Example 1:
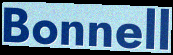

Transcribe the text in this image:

Bonnell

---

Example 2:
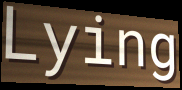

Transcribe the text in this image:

Lying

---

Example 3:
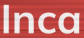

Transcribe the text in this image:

Inca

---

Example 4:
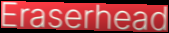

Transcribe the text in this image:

Eraserhead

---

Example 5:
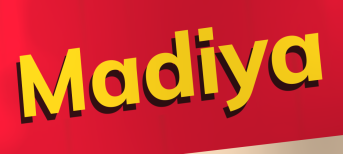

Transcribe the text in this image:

Madiya